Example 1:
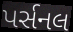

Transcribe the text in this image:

પર્સનલ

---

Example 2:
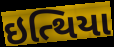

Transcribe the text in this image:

ઇત્થિયા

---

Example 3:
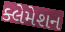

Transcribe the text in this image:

ક્લેમેશન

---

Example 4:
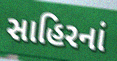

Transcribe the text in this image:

સાહિરનાં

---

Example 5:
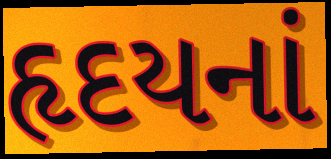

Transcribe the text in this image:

હૃદયનાં